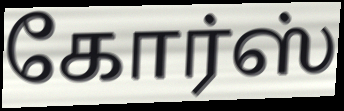
கோர்ஸ்